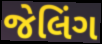
જેલિંગ